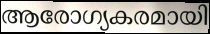
ആരോഗ്യകരമായി